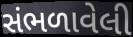
સંભળાવેલી